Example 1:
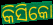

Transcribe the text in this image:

କିସିକୋ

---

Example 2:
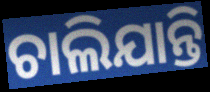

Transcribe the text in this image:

ଚାଲିଯାନ୍ତି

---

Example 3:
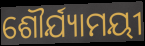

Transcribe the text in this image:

ଶୌର୍ଯ୍ୟାମୟୀ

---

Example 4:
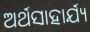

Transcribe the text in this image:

ଅର୍ଥସାହାର୍ଯ୍ୟ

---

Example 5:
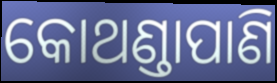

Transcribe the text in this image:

କୋଥଣ୍ଡାପାଣି